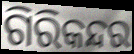
ଗିରିକନ୍ଦର